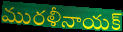
మురళీనాయక్